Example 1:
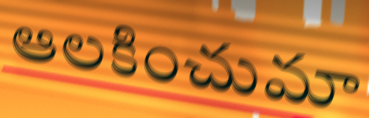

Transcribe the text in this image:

ఆలకించుమా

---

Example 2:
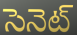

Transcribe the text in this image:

సెనెట్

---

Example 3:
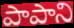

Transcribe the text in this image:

పాపాని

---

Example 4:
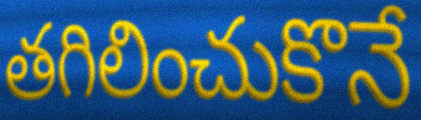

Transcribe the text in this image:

తగిలించుకొనే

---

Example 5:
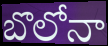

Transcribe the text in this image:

బొలోనా